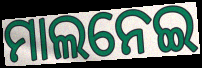
ମାଲନେଇ